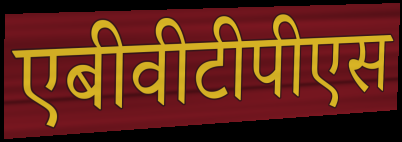
एबीवीटीपीएस